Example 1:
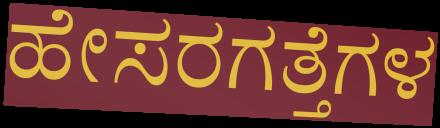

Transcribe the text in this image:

ಹೇಸರಗತ್ತೆಗಳ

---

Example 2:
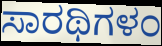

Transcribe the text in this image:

ಸಾರಥಿಗಳಂ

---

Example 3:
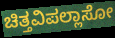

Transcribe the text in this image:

ಚಿತ್ತವಿಪಲ್ಲಾಸೋ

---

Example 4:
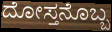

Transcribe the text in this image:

ದೋಸ್ತನೊಬ್ಬ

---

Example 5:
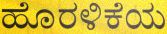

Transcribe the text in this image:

ಹೊರಳಿಕೆಯ